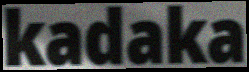
kadaka